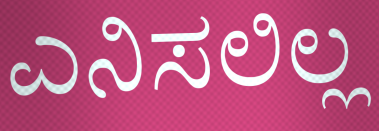
ಎನಿಸಲಿಲ್ಲ